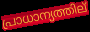
പ്രാധാന്യത്തില്